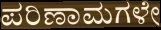
ಪರಿಣಾಮಗಳೇ